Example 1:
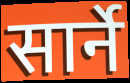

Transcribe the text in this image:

सार्ने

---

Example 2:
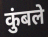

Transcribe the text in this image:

कुंबले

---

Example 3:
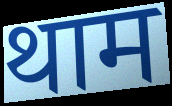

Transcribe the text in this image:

थाम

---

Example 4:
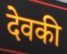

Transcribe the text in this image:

देवकी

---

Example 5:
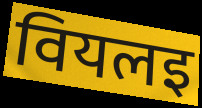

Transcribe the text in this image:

वियलइ